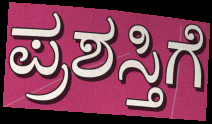
ಪ್ರಶಸ್ತಿಗೆ